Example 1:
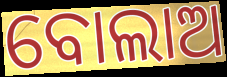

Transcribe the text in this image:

ବୋଲାଅ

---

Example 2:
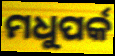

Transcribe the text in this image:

ମଧୁପର୍କ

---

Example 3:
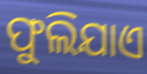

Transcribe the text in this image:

ଫୁଲିଯାଏ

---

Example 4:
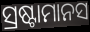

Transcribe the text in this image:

ସ୍ରଷ୍ଟାମାନସ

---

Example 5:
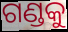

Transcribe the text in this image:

ଗଣ୍ଡକୁ